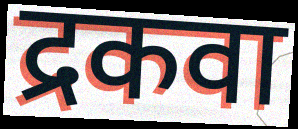
द्रकवा